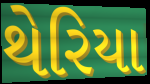
થેરિયા